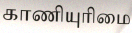
காணியுரிமை